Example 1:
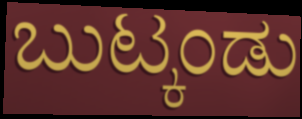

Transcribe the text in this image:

ಬುಟ್ಕಂಡು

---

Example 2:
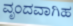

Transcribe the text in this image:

ವೃಂದವಾಗಿಹ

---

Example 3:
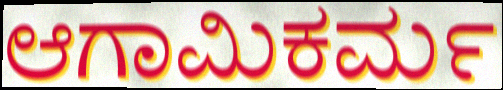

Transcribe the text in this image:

ಆಗಾಮಿಕರ್ಮ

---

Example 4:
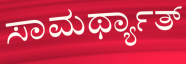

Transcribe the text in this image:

ಸಾಮರ್ಥ್ಯಾತ್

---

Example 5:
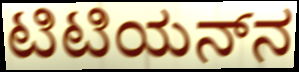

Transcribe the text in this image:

ಟಿಟಿಯನ್‌ನ